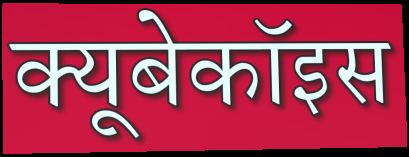
क्यूबेकॉइस